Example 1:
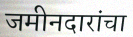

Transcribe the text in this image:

जमीनदारांचा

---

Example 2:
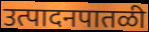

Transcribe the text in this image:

उत्पादनपातळी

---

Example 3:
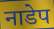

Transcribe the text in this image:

नाडेप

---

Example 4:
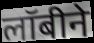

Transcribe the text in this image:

लॉबीने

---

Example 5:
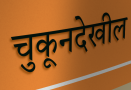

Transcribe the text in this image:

चुकूनदेखील